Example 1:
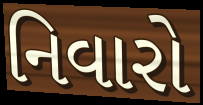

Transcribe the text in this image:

નિવારો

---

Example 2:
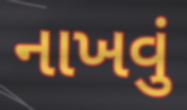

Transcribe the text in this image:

નાખવું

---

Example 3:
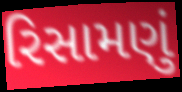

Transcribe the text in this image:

રિસામણું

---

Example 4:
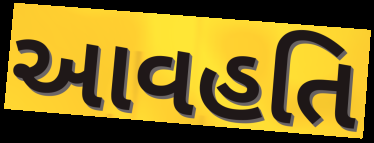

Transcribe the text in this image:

આવહતિ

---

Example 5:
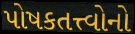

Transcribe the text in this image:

પોષકતત્ત્વોનો